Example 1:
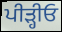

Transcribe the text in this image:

ਪੀੜ੍ਹੀਓ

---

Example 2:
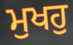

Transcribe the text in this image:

ਮੁਖਹੁ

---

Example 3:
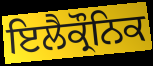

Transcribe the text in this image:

ਇਲੈਕ੍ਰੌਨਿਕ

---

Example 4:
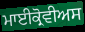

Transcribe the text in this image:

ਮਾਈਕ੍ਰੋਵੀਅਸ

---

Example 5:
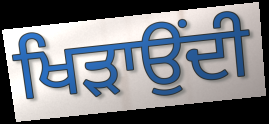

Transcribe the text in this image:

ਖਿੜਾਉਂਦੀ